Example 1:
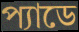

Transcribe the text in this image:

প্যাডে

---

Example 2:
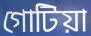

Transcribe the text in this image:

গোটিয়া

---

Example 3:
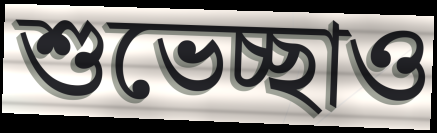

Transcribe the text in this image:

শুভেচ্ছাও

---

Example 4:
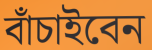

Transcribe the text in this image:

বাঁচাইবেন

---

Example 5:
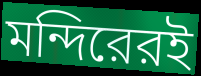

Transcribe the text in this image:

মন্দিরেরই